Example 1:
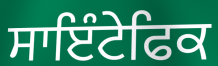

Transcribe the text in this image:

ਸਾਇੰਟੇਫਿਕ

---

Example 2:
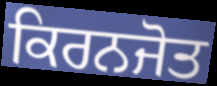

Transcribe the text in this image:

ਕਿਰਨਜੋਤ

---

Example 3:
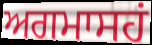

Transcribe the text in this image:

ਅਗਮਾਸਹਂ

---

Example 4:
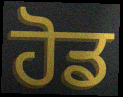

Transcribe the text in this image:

ਹੋਡ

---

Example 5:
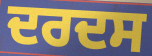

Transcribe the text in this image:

ਦਰਦਸ